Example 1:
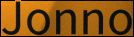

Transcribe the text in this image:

Jonno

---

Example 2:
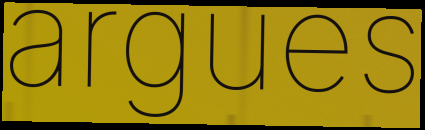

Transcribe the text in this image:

argues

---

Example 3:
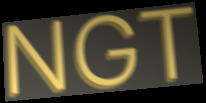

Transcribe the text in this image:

NGT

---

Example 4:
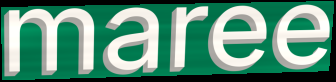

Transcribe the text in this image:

maree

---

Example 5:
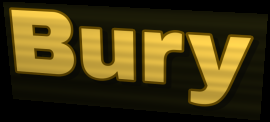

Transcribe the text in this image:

Bury